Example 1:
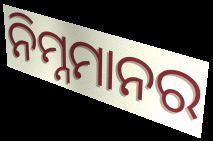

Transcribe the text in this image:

ନିମ୍ନମାନର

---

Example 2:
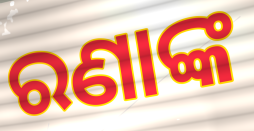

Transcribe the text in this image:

ରଣାଙ୍କ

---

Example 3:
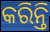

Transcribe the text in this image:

କରିନ୍ତି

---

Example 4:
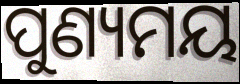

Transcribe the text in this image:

ପୁଣ୍ୟମୟ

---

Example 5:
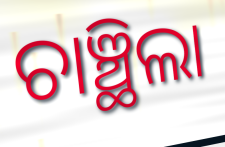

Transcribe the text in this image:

ଚାଞ୍ଛିଲା